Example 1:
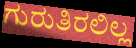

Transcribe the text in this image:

ಗುರುತಿರಲಿಲ್ಲ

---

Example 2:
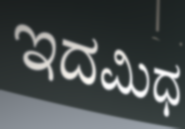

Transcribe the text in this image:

ಇದಮಿಧ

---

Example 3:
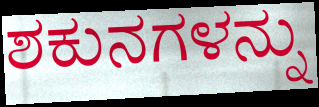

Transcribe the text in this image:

ಶಕುನಗಳನ್ನು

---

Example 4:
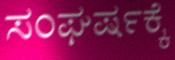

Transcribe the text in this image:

ಸಂಘರ್ಷಕ್ಕೆ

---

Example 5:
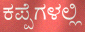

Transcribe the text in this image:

ಕಪ್ಪೆಗಳಲ್ಲಿ